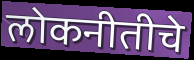
लोकनीतीचे